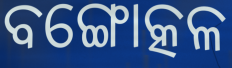
ବଙ୍ଗୋତ୍କଳ